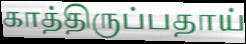
காத்திருப்பதாய்